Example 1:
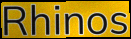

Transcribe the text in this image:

Rhinos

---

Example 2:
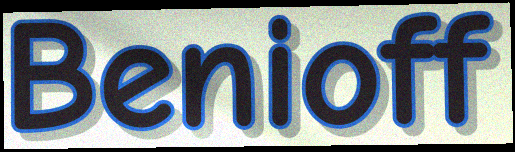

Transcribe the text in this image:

Benioff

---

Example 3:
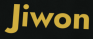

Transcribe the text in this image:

Jiwon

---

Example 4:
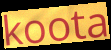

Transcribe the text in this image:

koota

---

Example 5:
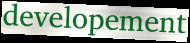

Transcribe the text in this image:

developement